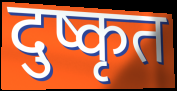
दुष्कृत